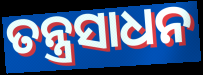
ତନ୍ତ୍ରସାଧନ